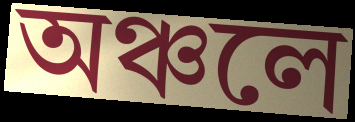
অঞ্চলে